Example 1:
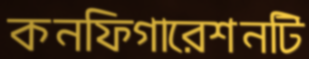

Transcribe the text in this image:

কনফিগারেশনটি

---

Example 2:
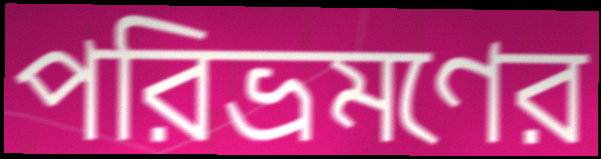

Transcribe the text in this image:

পরিভ্রমণের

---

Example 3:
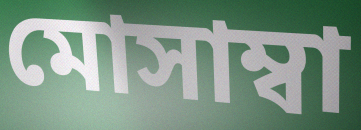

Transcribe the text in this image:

মোসাম্বা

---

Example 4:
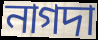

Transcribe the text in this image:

নাগদা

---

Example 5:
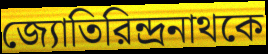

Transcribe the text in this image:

জ্যোতিরিন্দ্রনাথকে